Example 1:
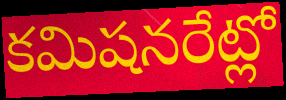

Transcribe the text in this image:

కమిషనరేట్లో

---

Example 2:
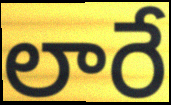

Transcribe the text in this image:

లారే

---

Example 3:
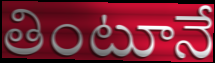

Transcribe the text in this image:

తింటూనే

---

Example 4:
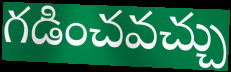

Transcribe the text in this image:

గడించవచ్చు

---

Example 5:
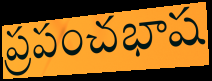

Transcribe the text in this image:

ప్రపంచభాష